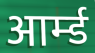
आर्म्ड